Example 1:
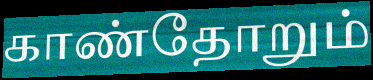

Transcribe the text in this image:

காண்தோறும்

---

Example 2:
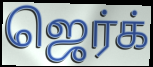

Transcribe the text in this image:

ஜெர்க்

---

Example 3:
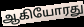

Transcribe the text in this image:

ஆகியோரது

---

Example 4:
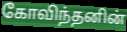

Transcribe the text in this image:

கோவிந்தனின்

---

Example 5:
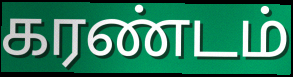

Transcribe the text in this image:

கரண்டம்